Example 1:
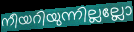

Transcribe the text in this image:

നീയറിയുന്നില്ലല്ലോ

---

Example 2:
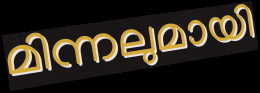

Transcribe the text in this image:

മിന്നലുമായി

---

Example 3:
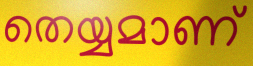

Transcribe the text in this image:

തെയ്യമാണ്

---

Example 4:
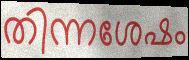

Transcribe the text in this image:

തിന്നശേഷം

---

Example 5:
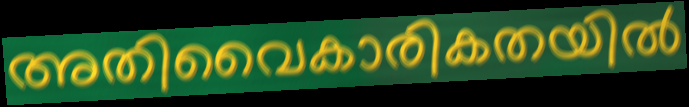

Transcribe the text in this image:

അതിവൈകാരികതയിൽ